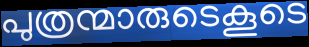
പുത്രന്മാരുടെകൂടെ